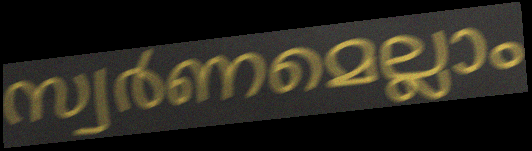
സ്വർണമെല്ലാം